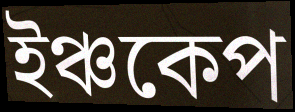
ইঞ্চকেপ